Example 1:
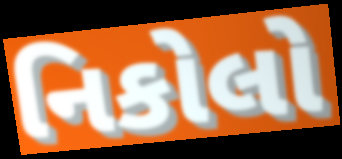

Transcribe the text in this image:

નિકોલો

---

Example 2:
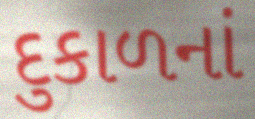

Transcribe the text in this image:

દુકાળનાં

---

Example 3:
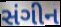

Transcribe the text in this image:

સંગીન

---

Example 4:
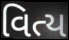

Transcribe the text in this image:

વિત્ય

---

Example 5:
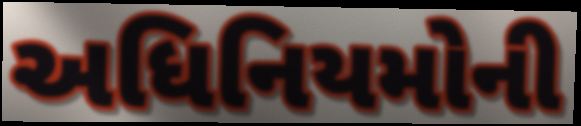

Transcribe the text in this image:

અધિનિયમોની